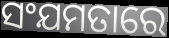
ସଂଯମତାରେ